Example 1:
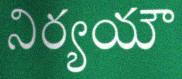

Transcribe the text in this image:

నిర్యయౌ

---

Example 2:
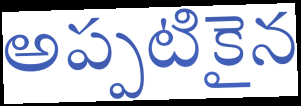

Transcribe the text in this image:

అప్పటికైన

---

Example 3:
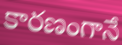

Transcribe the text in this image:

కారణంగానే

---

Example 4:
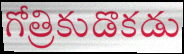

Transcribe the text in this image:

గోత్రికుడొకడు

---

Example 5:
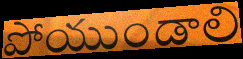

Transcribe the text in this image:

పోయుండాలి